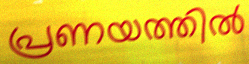
പ്രണയത്തിൽ